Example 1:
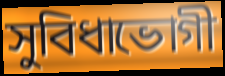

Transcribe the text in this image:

সুবিধাভোগী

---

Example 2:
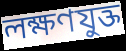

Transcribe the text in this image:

লক্ষণযুক্ত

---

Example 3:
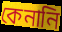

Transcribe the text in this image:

কেনানি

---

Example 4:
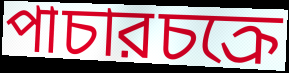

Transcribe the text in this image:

পাচারচক্রে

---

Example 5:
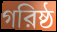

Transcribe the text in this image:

গরিষ্ঠ